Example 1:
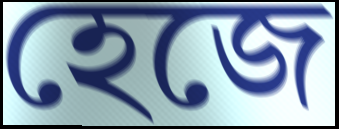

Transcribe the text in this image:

হেজে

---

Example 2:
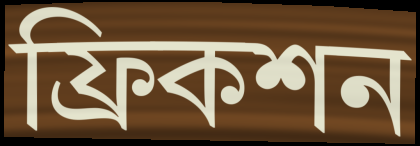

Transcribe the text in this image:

ফ্রিকশন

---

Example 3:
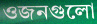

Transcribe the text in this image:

ওজনগুলো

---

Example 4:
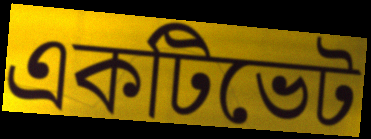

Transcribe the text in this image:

একটিভেট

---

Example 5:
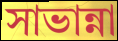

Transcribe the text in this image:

সাভান্না